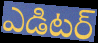
ఎడిటర్